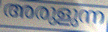
അരുളുന്ന